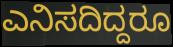
ಎನಿಸದಿದ್ದರೂ